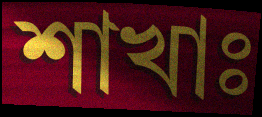
শাখাঃ